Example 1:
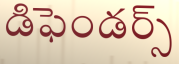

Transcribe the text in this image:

డిఫెండర్స్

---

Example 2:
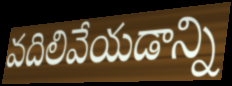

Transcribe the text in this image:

వదిలివేయడాన్ని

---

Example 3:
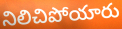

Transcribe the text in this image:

నిలిచిపోయారు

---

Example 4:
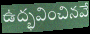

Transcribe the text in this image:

ఉద్భవించినవే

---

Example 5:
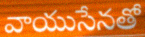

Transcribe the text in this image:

వాయుసేనతో